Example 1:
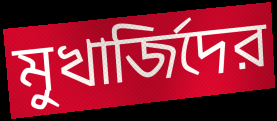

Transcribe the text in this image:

মুখার্জিদের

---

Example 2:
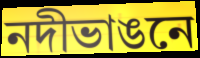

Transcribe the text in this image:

নদীভাঙনে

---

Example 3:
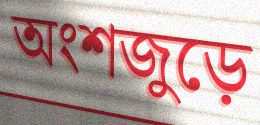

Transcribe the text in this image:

অংশজুড়ে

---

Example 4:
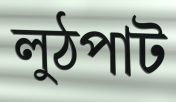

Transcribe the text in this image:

লুঠপাট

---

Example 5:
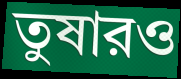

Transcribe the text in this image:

তুষারও